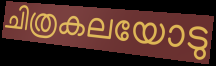
ചിത്രകലയോടു